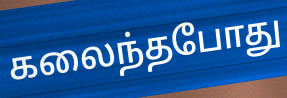
கலைந்தபோது